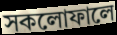
সকলোফালে